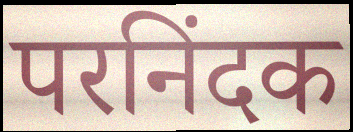
परनिंदक